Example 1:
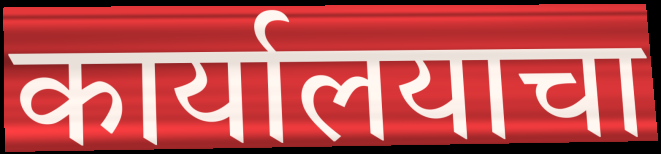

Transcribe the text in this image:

कार्यालयाचा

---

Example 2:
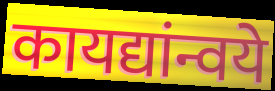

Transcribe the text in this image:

कायद्यांन्वये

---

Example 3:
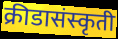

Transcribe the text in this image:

क्रीडासंस्कृती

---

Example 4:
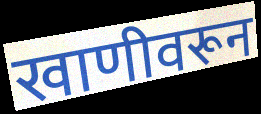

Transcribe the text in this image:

खाणीवरून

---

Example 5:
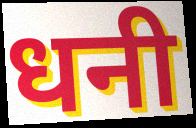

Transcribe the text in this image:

धनी